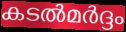
കടൽമർദ്ദം